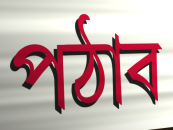
পঠাব